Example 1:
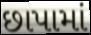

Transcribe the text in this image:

છાપામાં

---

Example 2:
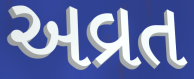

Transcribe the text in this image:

અવ્રત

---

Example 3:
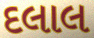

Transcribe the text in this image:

દલાલ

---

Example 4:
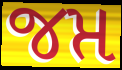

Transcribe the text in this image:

જપ્ત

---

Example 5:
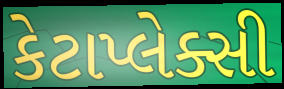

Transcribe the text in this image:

કેટાપ્લેક્સી